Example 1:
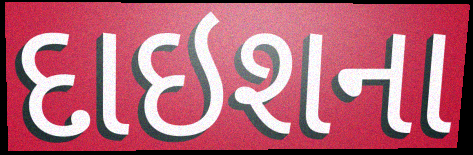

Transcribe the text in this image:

દાઇશના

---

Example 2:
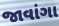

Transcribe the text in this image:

જાવાંગા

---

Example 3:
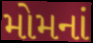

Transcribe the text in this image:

મોમનાં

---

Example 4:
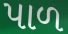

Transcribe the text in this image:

પાળ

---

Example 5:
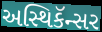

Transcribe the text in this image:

અસ્થિકૅન્સર